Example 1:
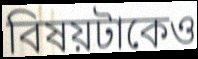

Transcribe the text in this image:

বিষয়টাকেও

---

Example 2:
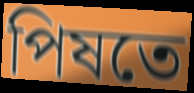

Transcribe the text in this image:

পিষতে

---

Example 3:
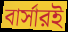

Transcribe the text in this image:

বার্সারই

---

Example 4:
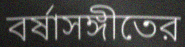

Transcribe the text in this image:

বর্ষাসঙ্গীতের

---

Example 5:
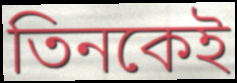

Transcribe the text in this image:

তিনকেই